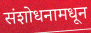
संशोधनामधून